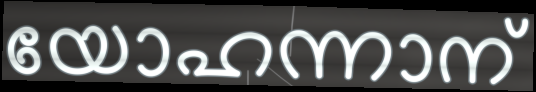
യോഹന്നാന്